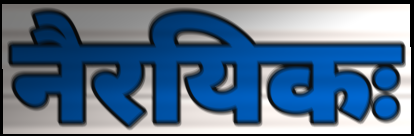
नैरयिकः